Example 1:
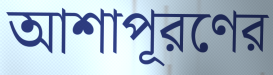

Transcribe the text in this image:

আশাপূরণের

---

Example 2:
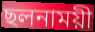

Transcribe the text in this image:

ছলনাময়ী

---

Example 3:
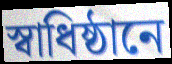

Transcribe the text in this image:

স্বাধিষ্ঠানে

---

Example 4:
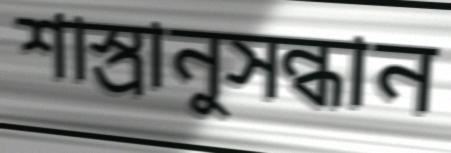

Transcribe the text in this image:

শাস্ত্রানুসন্ধান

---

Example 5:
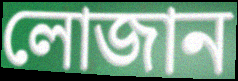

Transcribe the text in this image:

লোজান